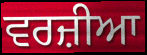
ਵਰਜ਼ੀਆ